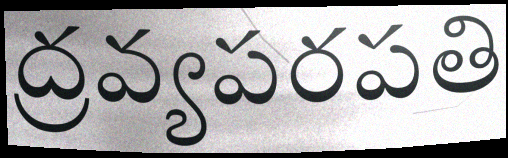
ద్రవ్యపరపతి